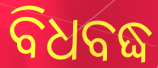
ବିଧବଦ୍ଧ